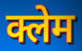
क्लेम